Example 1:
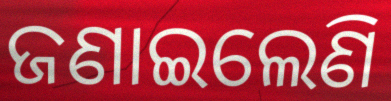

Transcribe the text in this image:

ଜଣାଇଲେଣି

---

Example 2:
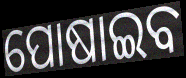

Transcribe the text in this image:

ପୋଷାଇବ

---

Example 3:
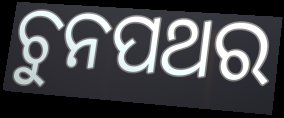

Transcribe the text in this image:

ଚୁନପଥର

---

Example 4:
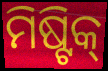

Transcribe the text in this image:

ମିଷ୍ଟିକ୍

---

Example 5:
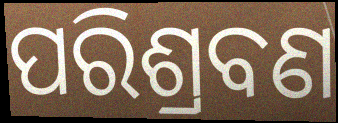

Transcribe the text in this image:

ପରିଶ୍ରବଣ